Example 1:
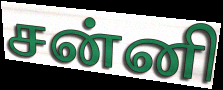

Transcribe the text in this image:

சன்னி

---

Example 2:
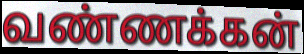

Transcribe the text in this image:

வண்ணக்கன்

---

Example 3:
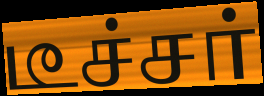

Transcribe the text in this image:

டீச்சர்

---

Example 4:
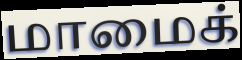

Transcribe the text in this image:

மாமைக்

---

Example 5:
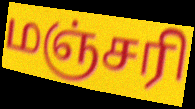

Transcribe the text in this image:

மஞ்சரி